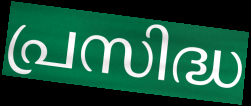
പ്രസിദ്ധ